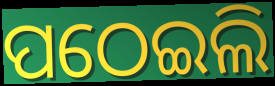
ପଠେଇଲି